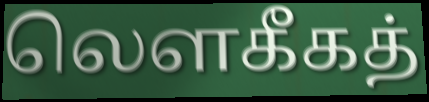
லௌகீகத்